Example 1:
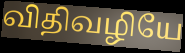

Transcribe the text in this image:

விதிவழியே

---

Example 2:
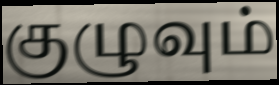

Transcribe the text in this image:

குழுவும்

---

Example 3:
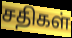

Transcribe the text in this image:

சதிகள்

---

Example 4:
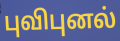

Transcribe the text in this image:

புவிபுனல்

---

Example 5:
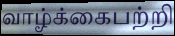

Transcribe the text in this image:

வாழ்க்கைபற்றி